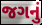
જગનું